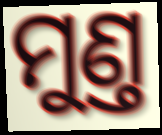
ମୁଣ୍ତ